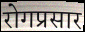
रोगप्रसार